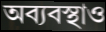
অব্যবস্থাও